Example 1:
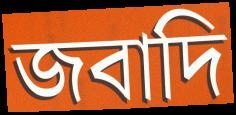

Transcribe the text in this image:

জবাদি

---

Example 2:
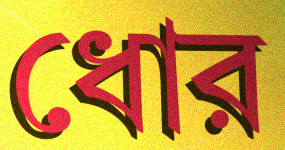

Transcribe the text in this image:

ধোর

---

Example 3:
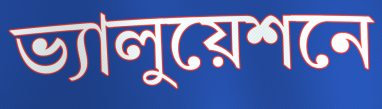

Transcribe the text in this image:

ভ্যালুয়েশনে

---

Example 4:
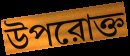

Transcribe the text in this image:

উপরোক্ত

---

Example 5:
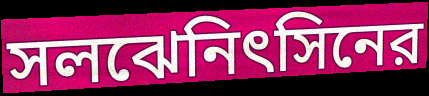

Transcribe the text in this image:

সলঝেনিৎসিনের